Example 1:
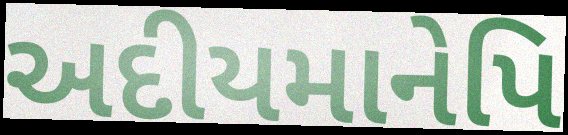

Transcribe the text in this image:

અદીયમાનેપિ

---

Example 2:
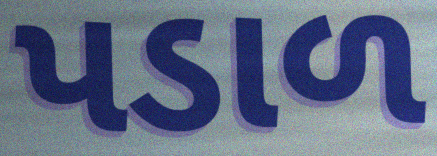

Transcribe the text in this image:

પડાળ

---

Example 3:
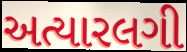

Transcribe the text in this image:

અત્યારલગી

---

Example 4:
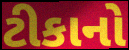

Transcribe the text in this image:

ટીકાનો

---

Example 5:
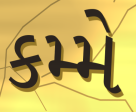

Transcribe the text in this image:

કમ્મે